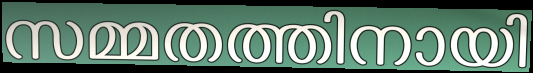
സമ്മതത്തിനായി